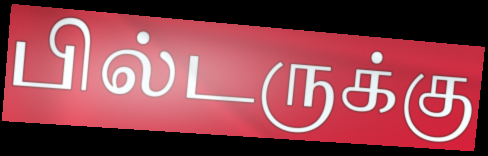
பில்டருக்கு